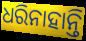
ଧରିନାହାନ୍ତି